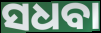
ସଧବା